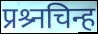
प्रश्र्नचिन्ह